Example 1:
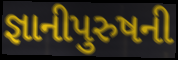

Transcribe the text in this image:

જ્ઞાનીપુરુષની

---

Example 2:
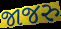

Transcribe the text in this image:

જાજરુ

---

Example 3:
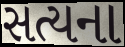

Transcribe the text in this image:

સત્યના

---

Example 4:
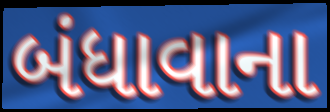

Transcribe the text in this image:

બંધાવાના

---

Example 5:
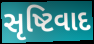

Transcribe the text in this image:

સૃષ્ટિવાદ